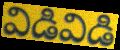
విడివిడి